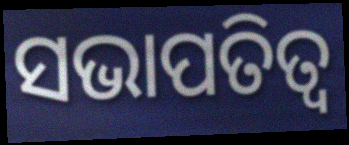
ସଭାପତିତ୍ଵ